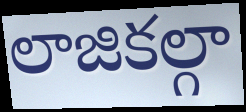
లాజికల్గా